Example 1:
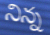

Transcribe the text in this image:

నిన్న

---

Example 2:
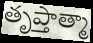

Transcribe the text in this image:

తృప్తాత్మా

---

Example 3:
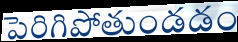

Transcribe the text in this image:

పెరిగిపోతుండడం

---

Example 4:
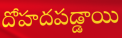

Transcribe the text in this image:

దోహదపడ్డాయి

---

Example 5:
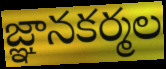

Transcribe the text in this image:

జ్ఞానకర్మల